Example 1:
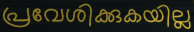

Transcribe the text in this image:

പ്രവേശിക്കുകയില്ല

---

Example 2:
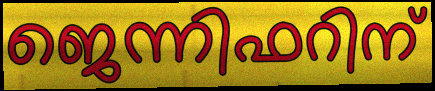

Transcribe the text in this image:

ജെന്നിഫറിന്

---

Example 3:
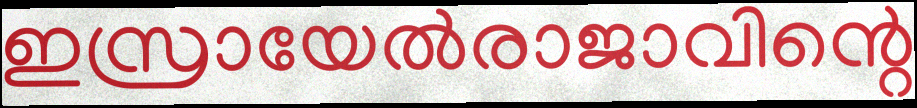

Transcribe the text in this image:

ഇസ്രായേൽരാജാവിന്റെ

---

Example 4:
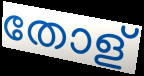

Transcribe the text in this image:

തോള്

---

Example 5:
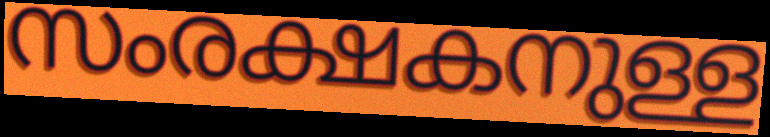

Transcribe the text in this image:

സംരക്ഷകനുള്ള